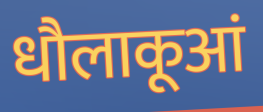
धौलाकूआं